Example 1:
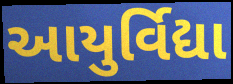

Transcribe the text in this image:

આયુર્વિદ્યા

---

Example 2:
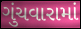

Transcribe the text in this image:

ગુંચવારામાં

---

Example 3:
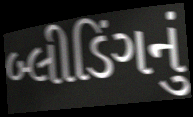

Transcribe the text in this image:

બ્લીડિંગનું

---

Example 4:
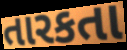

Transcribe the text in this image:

તારકતા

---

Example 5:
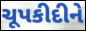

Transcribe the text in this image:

ચૂપકીદીને